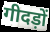
गीदड़ों